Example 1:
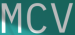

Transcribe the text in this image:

MCV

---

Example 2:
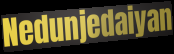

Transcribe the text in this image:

Nedunjedaiyan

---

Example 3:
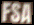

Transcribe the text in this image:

FSA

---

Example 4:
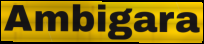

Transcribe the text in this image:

Ambigara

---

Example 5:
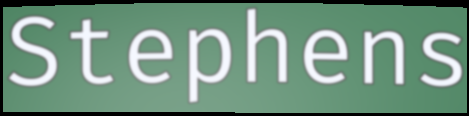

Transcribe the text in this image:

Stephens